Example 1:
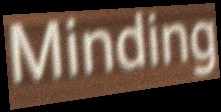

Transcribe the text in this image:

Minding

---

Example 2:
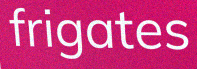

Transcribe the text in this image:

frigates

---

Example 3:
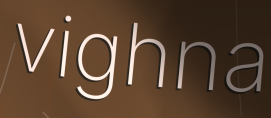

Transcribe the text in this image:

vighna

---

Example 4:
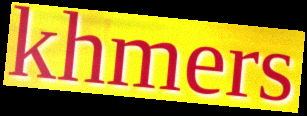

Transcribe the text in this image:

khmers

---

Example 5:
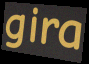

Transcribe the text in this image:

gira